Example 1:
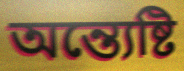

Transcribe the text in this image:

অন্ত্যেষ্টি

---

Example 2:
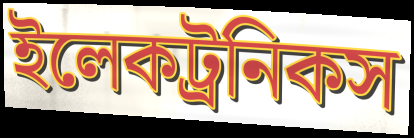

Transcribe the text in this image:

ইলেকট্রনিকস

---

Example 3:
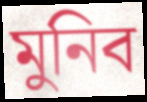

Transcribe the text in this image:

মুনিব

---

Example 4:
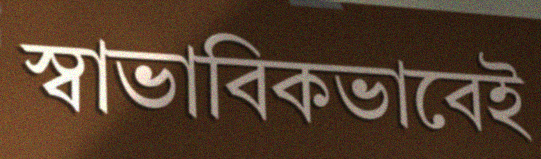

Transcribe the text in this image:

স্বাভাবিকভাবেই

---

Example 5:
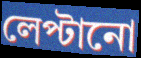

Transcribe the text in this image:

লেপ্টানো